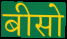
बीसो